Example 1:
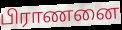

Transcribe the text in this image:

பிராணனை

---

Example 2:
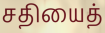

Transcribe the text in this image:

சதியைத்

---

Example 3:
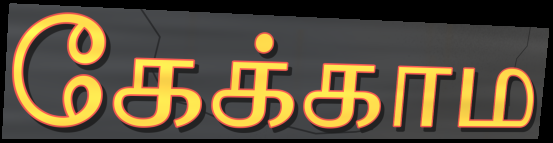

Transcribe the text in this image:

கேக்காம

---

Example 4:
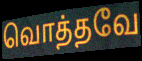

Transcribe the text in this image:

வொத்தவே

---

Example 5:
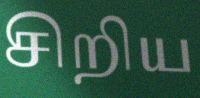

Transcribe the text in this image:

சிறிய